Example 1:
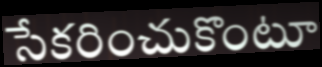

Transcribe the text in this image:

సేకరించుకొంటూ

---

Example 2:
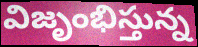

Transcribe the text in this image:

విజృంభిస్తున్న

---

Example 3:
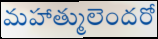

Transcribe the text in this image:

మహాత్ములెందరో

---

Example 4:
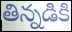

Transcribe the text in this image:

తిన్నడికి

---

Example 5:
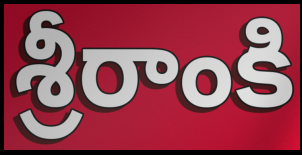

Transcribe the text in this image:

శ్రీరాంకి